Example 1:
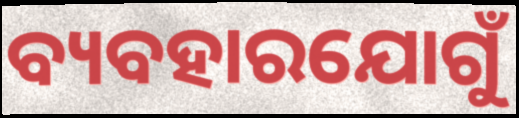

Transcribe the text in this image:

ବ୍ୟବହାରଯୋଗୁଁ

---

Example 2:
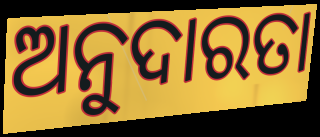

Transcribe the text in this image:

ଅନୁଦାରତା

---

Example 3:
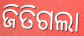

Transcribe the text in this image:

ଜିତିଗଲା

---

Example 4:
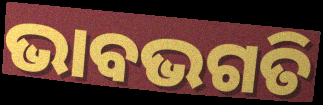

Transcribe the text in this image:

ଭାବଭଗତି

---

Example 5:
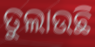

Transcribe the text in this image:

ତୁଲାଉଛି